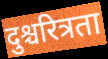
दुश्चरित्रता